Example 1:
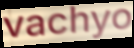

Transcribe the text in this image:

vachyo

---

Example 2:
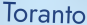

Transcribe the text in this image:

Toranto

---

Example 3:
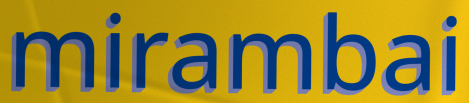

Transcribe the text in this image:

mirambai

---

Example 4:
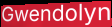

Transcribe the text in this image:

Gwendolyn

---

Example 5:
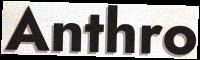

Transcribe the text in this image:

Anthro